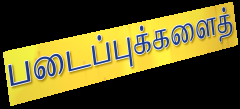
படைப்புக்களைத்